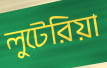
লুটেরিয়া